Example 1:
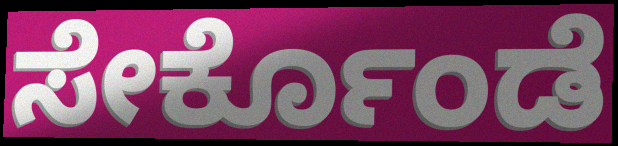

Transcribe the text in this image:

ಸೇರ್ಕೊಂಡೆ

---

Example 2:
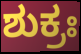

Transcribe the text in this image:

ಶುಕ್ರಃ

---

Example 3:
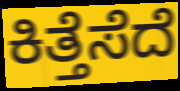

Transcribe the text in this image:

ಕಿತ್ತೆಸೆದೆ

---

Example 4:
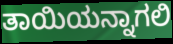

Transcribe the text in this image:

ತಾಯಿಯನ್ನಾಗಲಿ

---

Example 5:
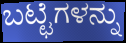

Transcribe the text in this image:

ಬಟ್ಟೆಗಳನ್ನು